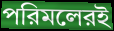
পরিমলেরই